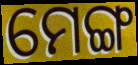
ମେଙ୍ଗ